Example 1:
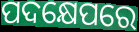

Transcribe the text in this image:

ପଦକ୍ଷେପରେ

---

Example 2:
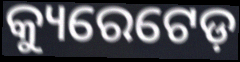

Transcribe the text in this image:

କ୍ୟୁରେଟେଡ଼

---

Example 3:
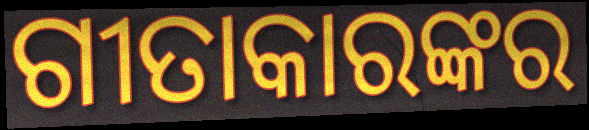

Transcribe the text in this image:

ଗୀତାକାରଙ୍କର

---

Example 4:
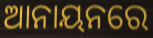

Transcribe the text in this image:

ଆନାୟନରେ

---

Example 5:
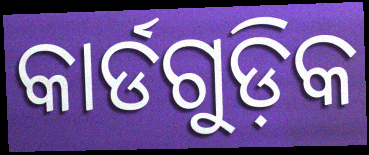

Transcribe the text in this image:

କାର୍ଡଗୁଡ଼ିକ